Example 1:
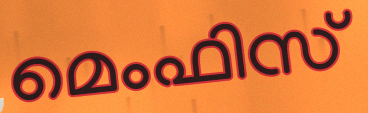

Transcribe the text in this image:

മെംഫിസ്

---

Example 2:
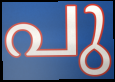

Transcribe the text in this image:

പു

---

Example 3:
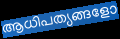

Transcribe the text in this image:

ആധിപത്യങ്ങളോ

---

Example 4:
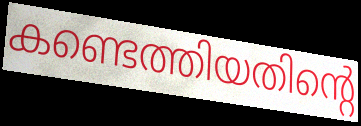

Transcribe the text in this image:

കണ്ടെത്തിയതിന്റെ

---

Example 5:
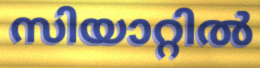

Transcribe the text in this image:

സിയാറ്റിൽ